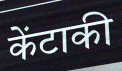
केंटाकी